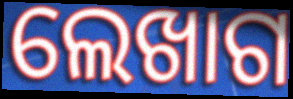
ଲେଖାଗ